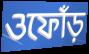
ওফোঁড়